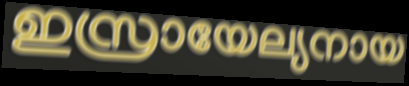
ഇസ്രായേല്യനായ